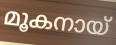
മൂകനായ്